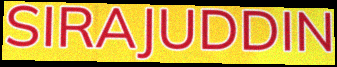
SIRAJUDDIN